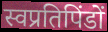
स्वप्रतिपिंडों